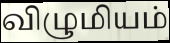
விழுமியம்